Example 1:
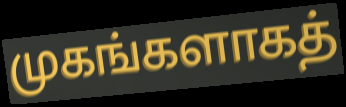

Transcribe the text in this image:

முகங்களாகத்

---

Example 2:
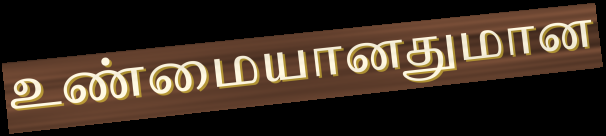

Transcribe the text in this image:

உண்மையானதுமான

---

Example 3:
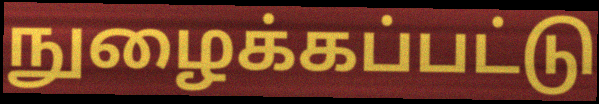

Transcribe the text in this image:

நுழைக்கப்பட்டு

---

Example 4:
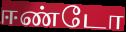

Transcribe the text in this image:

ஈண்டோ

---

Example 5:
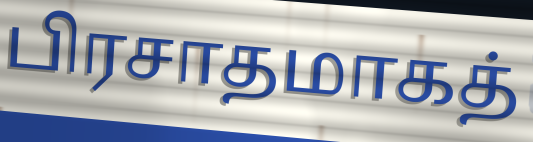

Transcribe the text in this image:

பிரசாதமாகத்